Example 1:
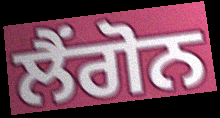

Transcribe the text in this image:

ਲੈਂਗੋਨ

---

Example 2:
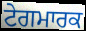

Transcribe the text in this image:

ਟੇਗਮਾਰਕ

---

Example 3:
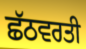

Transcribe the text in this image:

ਛੱਠਵਰਤੀ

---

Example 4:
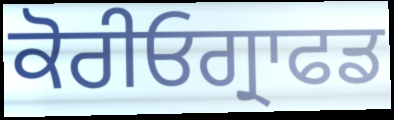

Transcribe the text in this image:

ਕੋਰੀਓਗ੍ਰਾਫਡ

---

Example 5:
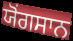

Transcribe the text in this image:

ਯੋਂਗਸਾਨ